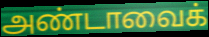
அண்டாவைக்